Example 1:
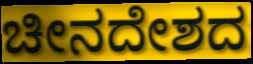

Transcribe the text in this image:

ಚೀನದೇಶದ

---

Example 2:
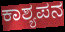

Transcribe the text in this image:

ಕಾಶ್ಯಪನ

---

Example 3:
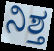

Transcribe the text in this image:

ನಿಶ್ತ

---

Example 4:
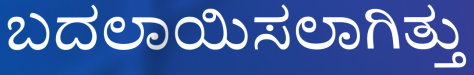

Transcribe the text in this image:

ಬದಲಾಯಿಸಲಾಗಿತ್ತು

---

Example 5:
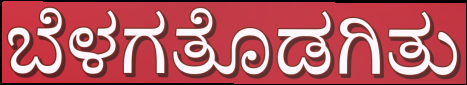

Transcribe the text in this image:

ಬೆಳಗತೊಡಗಿತು